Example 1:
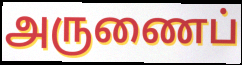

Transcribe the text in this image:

அருணைப்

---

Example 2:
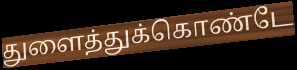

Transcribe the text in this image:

துளைத்துக்கொண்டே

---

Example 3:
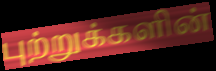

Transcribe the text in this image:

புற்றுக்களின்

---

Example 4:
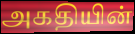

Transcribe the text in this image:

அகதியின்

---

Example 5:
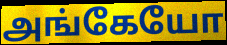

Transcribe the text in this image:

அங்கேயோ